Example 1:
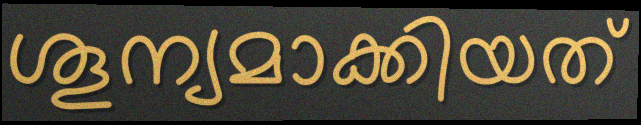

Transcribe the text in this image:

ശൂന്യമാക്കിയത്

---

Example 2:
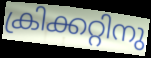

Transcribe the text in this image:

ക്രിക്കറ്റിനു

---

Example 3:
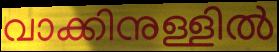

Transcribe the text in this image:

വാക്കിനുള്ളിൽ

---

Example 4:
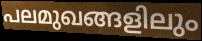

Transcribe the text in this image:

പലമുഖങ്ങളിലും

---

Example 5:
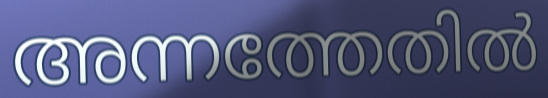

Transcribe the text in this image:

അന്നത്തേതിൽ